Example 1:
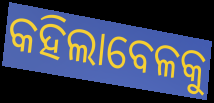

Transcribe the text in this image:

କହିଲାବେଳକୁ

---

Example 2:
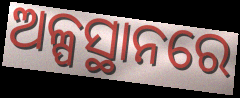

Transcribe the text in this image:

ଅଳ୍ପସ୍ଥାନରେ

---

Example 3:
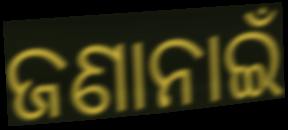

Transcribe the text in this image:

ଜଣାନାଇଁ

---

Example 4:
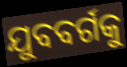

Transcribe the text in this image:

ଯୁବବର୍ଗକୁ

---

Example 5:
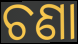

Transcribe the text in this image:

ଚଣା